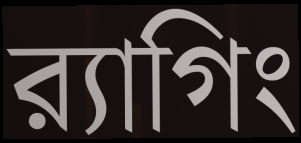
র‍্যাগিং